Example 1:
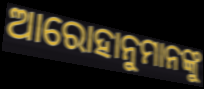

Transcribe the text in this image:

ଆରୋହାନୁମାନଙ୍କୁ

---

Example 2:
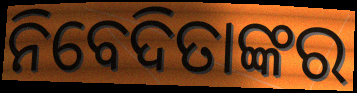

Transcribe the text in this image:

ନିବେଦିତାଙ୍କର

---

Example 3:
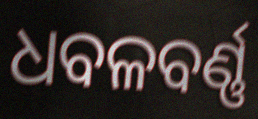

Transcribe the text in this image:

ଧବଳବର୍ଣ୍ଣ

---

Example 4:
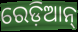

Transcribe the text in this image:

ରେଡ଼ିଆନ୍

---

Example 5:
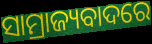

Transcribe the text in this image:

ସାମ୍ରାଜ୍ୟବାଦରେ